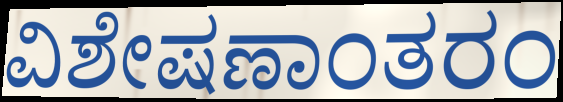
ವಿಶೇಷಣಾಂತರಂ